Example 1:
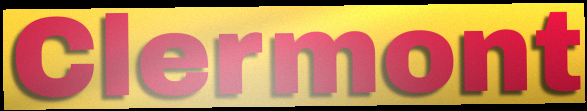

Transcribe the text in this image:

Clermont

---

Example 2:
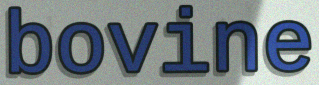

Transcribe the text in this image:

bovine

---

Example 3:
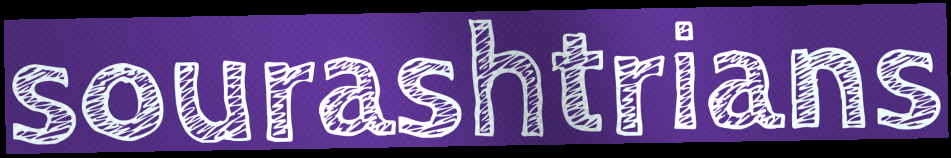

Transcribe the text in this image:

sourashtrians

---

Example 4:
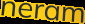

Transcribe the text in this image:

neram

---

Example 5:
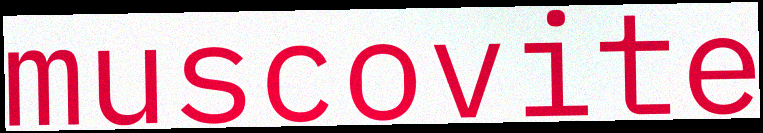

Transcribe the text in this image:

muscovite